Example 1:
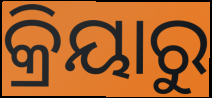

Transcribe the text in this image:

କ୍ରିୟାରୁ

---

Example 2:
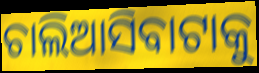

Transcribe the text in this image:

ଚାଲିଆସିବାଟାକୁ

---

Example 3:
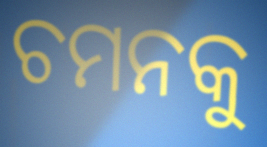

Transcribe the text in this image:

ଚମନକୁ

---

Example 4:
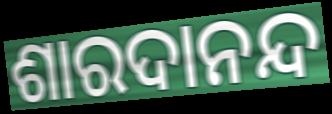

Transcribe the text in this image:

ଶାରଦାନନ୍ଦ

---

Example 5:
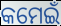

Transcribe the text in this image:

କମେଇଁ